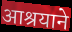
आश्रयाने